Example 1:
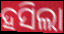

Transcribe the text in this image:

ହସିଲା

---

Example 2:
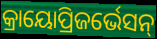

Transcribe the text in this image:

କ୍ରାୟୋପ୍ରିଜର୍ଭେସନ୍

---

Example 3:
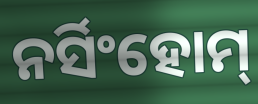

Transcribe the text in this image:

ନର୍ସିଂହୋମ୍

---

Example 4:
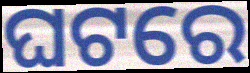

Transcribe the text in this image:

ଘଟରେ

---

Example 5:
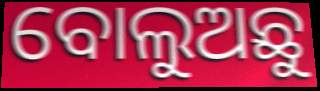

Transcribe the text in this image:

ବୋଲୁଅଛୁ